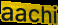
aachi